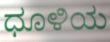
ಧೂಳಿಯ